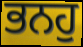
ਭਨਹੁ